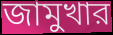
জামুখার